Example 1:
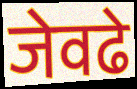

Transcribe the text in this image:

जेवढे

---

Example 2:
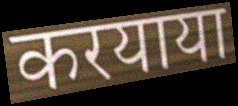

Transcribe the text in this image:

करयाया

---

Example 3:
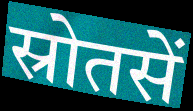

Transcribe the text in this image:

स्रोतसें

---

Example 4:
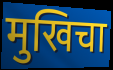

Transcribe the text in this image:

मुखिचा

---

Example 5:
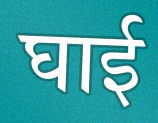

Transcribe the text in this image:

घाई